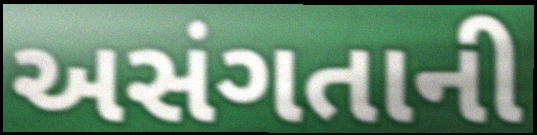
અસંગતાની